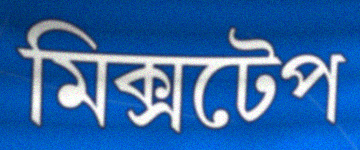
মিক্সটেপ